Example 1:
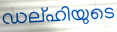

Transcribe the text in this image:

ഡല്ഹിയുടെ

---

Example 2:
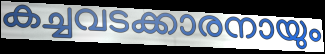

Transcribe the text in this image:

കച്ചവടക്കാരനായും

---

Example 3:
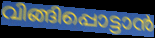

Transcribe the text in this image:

വിങ്ങിപ്പൊട്ടാൻ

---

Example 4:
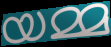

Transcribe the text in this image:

യമ്മ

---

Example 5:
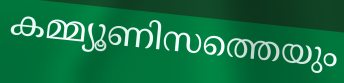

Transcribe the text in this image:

കമ്മ്യൂണിസത്തെയും